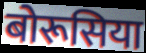
बोरूसिया